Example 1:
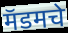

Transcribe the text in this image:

मॅडमचे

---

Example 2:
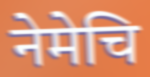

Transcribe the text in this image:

नेमेचि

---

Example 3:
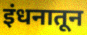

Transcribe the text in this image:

इंधनातून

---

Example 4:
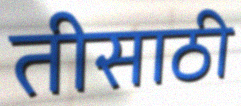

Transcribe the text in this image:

तीसाठी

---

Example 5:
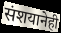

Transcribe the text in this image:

संशयानेही